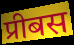
प्रीबस